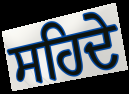
ਸਹਿਦੇ